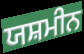
ਯਸ਼ਮੀਨ